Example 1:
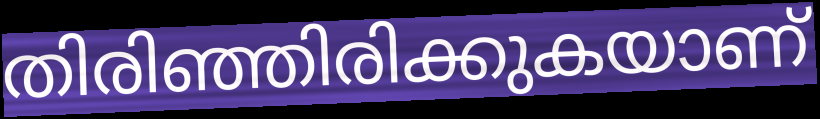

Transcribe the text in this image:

തിരിഞ്ഞിരിക്കുകയാണ്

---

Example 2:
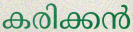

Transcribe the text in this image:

കരിക്കൻ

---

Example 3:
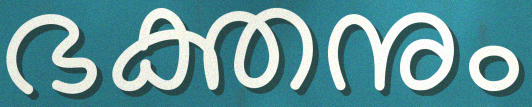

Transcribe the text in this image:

ഭക്തനും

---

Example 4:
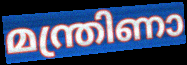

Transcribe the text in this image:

മന്ത്രിണാ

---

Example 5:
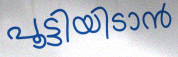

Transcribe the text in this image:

പൂട്ടിയിടാൻ